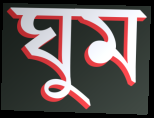
ঘুম